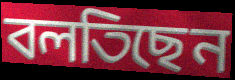
বলতিছেন